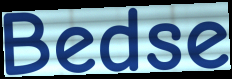
Bedse